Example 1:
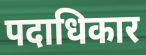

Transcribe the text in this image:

पदाधिकार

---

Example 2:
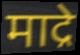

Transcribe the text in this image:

माद्रे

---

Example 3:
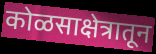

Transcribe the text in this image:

कोळसाक्षेत्रातून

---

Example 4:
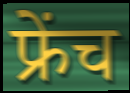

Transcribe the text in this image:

फ्रेंच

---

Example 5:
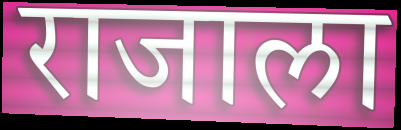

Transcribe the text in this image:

राजाला